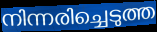
നിന്നരിച്ചെടുത്ത